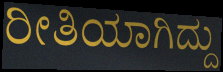
ರೀತಿಯಾಗಿದ್ದು